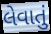
લેવાતું